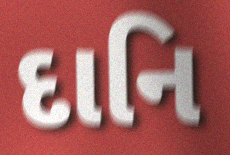
દાનિ